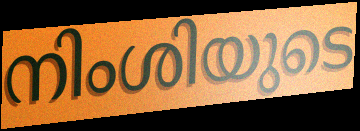
നിംശിയുടെ